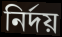
নিৰ্দয়